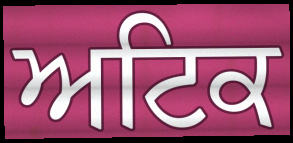
ਅਟਿਕ